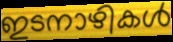
ഇടനാഴികൾ